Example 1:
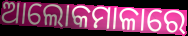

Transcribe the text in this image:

ଆଲୋକମାଳାରେ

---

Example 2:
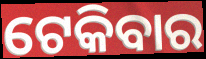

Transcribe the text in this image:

ଟେକିବାର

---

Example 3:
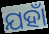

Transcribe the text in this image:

ଯହାଁ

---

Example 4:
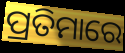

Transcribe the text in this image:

ପ୍ରତିମାରେ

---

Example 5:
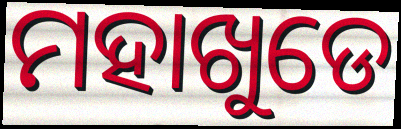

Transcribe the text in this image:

ମହାଖୁଡେ